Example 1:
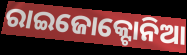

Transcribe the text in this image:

ରାଇଜୋକ୍ଟୋନିଆ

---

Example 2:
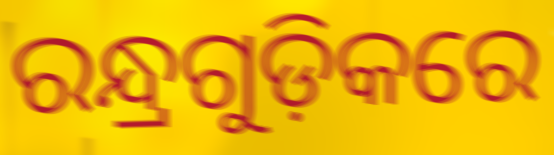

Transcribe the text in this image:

ରନ୍ଧ୍ରଗୁଡ଼ିକରେ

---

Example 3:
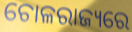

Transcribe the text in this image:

ଚୋଳରାଜ୍ୟରେ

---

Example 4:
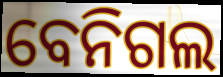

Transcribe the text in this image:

ବେନିଗଲ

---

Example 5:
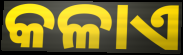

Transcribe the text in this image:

କଳାଏ